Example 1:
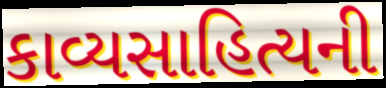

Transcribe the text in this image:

કાવ્યસાહિત્યની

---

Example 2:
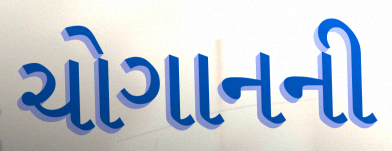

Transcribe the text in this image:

ચોગાનની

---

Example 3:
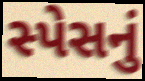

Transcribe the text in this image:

સ્પેસનું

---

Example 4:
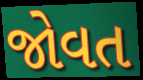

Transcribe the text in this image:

જોવત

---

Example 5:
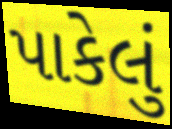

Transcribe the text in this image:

પાકેલું